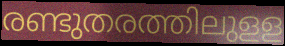
രണ്ടുതരത്തിലുളള